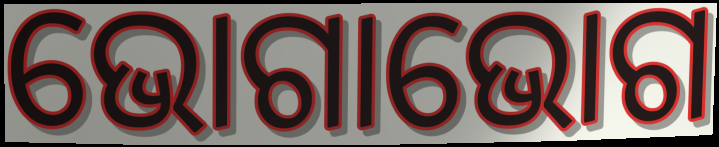
ଭୋଗାଭୋଗ